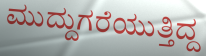
ಮುದ್ದುಗರೆಯುತ್ತಿದ್ದ